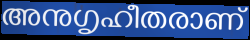
അനുഗൃഹീതരാണ്